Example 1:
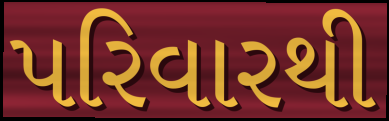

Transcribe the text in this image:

પરિવારથી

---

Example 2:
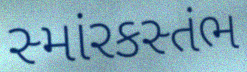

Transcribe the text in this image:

સ્માંરકસ્તંભ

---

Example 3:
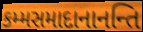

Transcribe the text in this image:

કમ્મસમાદાનાનન્તિ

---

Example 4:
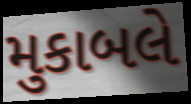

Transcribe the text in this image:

મુકાબલે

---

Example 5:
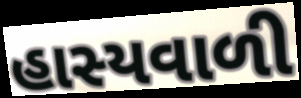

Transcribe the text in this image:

હાસ્યવાળી